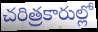
చరిత్రకారుల్లో